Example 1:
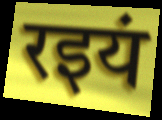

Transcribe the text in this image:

रइयं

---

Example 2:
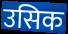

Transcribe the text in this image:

उसिक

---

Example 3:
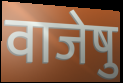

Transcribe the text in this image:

वाजेषु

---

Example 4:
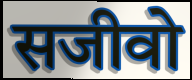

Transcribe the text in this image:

सजीवो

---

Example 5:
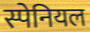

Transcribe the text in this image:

स्पेनियल